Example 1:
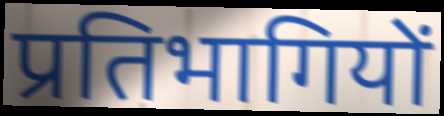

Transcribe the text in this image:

प्रतिभागियों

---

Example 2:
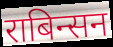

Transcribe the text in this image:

राबिन्सन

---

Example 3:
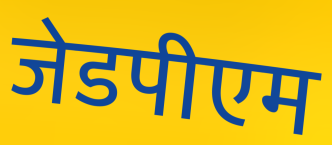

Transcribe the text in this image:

जेडपीएम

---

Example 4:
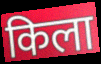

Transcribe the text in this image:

किला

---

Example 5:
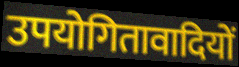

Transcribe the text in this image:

उपयोगितावादियों